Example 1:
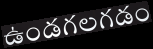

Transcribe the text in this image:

ఉండగలగడం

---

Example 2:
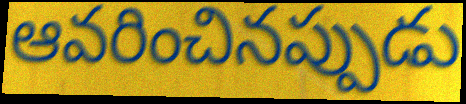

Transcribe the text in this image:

ఆవరించినప్పుడు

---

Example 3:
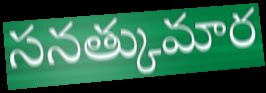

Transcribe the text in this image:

సనత్కుమార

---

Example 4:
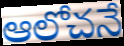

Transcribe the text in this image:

ఆలోచనే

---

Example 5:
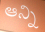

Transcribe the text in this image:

ఆన్ని